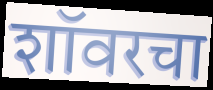
शॉवरचा